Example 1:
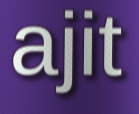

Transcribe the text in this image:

ajit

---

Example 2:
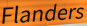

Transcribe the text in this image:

Flanders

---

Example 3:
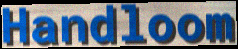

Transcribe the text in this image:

Handloom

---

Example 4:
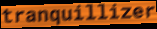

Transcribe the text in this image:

tranquillizer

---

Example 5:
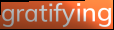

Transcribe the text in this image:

gratifying